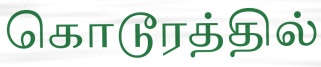
கொடூரத்தில்